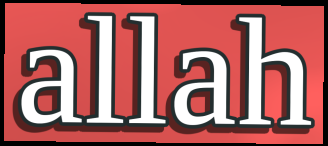
allah